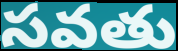
సవతు